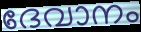
ദേവാനം